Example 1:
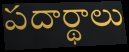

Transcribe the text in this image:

పదార్థాలు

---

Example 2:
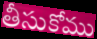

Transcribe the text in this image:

తీసుకోము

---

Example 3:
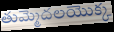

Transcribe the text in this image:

తుమ్మెదలయొక్క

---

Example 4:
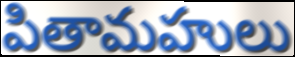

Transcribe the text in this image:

పితామహులు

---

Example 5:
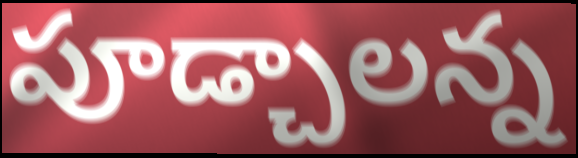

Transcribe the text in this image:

పూడ్చాలన్న